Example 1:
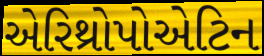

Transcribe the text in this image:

એરિથ્રોપોએટિન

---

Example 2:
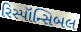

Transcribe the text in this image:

રિસ્પૉન્સિબલ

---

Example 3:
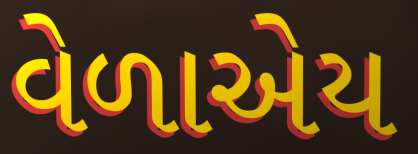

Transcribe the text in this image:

વેળાએય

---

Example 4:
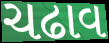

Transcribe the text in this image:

ચઢાવ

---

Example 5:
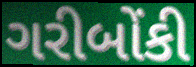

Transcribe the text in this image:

ગરીબોંકી